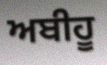
ਅਬੀਹੂ